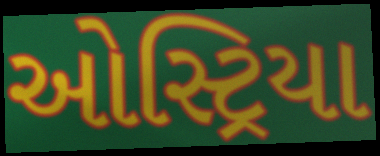
ઓસ્ટ્રિયા